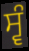
ਸ੍ਵੰ